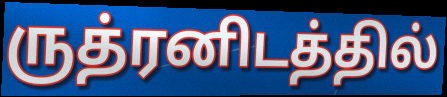
ருத்ரனிடத்தில்